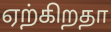
ஏற்கிறதா